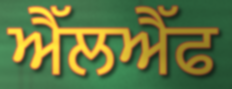
ਐੱਲਐੱਫ